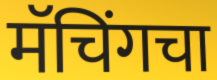
मॅचिंगचा